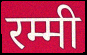
रम्मी